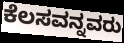
ಕೆಲಸವನ್ನವರು